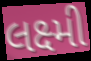
લક્ષ્મી